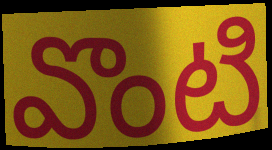
వొంటి